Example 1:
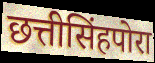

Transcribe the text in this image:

छत्तीसिंहपोरा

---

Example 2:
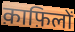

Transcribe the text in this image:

क़ाफ़िलों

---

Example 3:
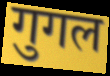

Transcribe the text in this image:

गुगल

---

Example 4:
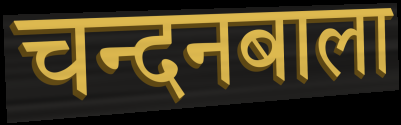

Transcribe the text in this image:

चन्दनबाला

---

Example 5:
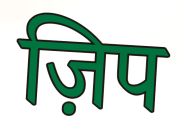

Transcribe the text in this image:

ज़िप